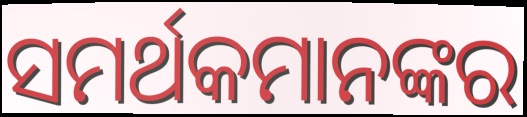
ସମର୍ଥକମାନଙ୍କର